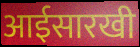
आईसारखी